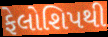
ફેલોશિપથી